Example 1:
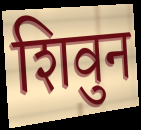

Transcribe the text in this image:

शिवुन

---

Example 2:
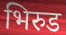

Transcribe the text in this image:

भिरुड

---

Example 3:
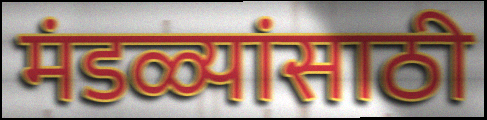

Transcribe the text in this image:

मंडळ्यांसाठी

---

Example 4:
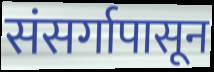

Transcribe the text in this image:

संसर्गापासून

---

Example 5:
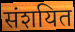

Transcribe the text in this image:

संशयित